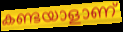
കണ്ടയാളാണ്